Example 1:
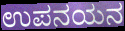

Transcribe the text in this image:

ಉಪನಯನ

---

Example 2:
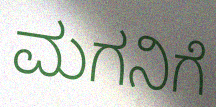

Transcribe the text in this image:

ಮಗನಿಗೆ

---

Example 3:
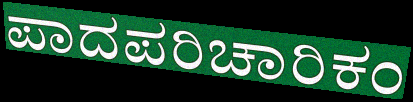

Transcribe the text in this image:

ಪಾದಪರಿಚಾರಿಕಂ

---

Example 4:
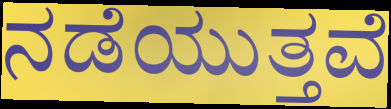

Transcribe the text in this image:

ನಡೆಯುತ್ತವೆ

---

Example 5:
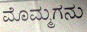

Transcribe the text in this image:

ಮೊಮ್ಮಗನು